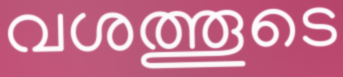
വശത്തൂടെ